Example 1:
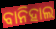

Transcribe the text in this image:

ବାନିହାଲ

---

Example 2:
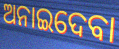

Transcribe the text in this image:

ଅନାଇଦେବା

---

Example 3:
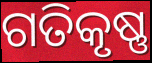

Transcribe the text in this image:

ଗତିକୃଷ୍ଣ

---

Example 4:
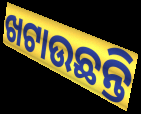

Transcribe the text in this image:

ଖଟାଉଛନ୍ତି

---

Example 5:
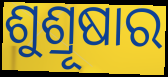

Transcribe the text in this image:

ଶୁଶ୍ରୂଷାର